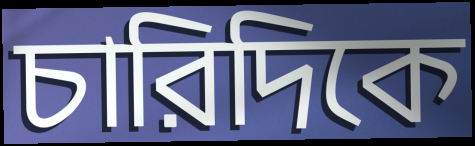
চারিদিকে